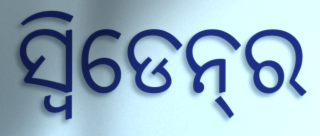
ସ୍ୱିଡେନ୍‌ର